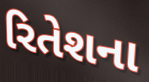
રિતેશના